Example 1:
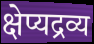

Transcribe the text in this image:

क्षेप्यद्रव्य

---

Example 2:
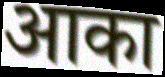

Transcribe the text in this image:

आका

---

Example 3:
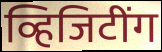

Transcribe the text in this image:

व्हिजिटींग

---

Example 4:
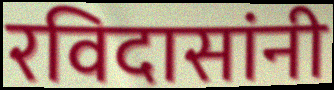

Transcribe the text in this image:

रविदासांनी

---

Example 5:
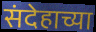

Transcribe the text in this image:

संदेहाच्या